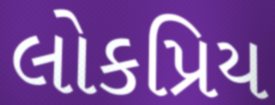
લોકપ્રિય